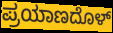
ಪ್ರಯಾಣದೊಳ್